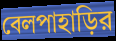
বেলপাহাড়ির